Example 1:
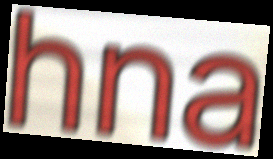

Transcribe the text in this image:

hna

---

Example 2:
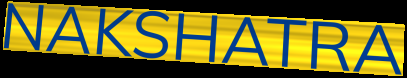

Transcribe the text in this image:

NAKSHATRA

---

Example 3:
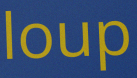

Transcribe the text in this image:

loup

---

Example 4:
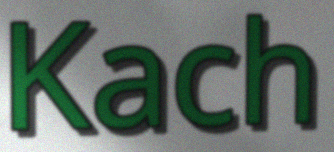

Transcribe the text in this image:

Kach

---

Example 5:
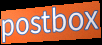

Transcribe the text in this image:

postbox